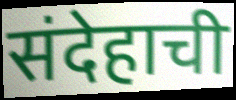
संदेहाची